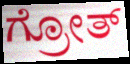
ಗ್ರೋತ್